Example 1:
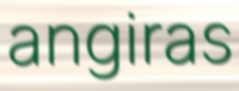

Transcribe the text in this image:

angiras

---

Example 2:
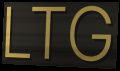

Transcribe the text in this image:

LTG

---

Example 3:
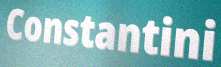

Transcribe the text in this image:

Constantini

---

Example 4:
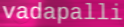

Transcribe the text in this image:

vadapalli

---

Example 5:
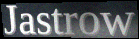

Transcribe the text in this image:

Jastrow